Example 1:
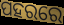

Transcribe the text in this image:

ପହରରେ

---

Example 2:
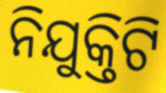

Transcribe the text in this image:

ନିଯୁକ୍ତିଟି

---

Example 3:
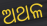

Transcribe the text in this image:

ଅଥଳ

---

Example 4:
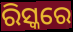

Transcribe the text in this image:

ରିସ୍କରେ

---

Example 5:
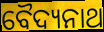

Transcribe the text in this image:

ବୈଦ୍ୟନାଥ